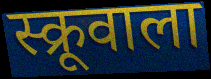
स्क्रूवाला